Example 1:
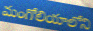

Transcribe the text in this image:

మంగోలియాలోని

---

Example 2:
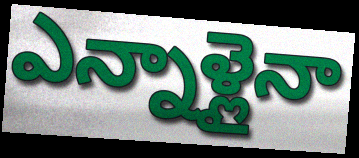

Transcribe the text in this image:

ఎన్నాళ్లైనా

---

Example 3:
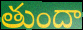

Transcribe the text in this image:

తుందా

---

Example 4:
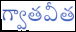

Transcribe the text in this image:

గ్వాతవీత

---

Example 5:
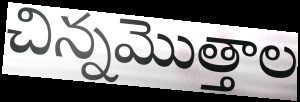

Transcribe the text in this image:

చిన్నమొత్తాల